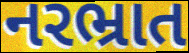
નરભ્રાત